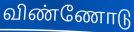
விண்ணோடு